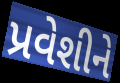
પ્રવેશીને